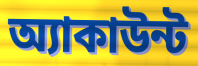
অ্যাকাউন্ট